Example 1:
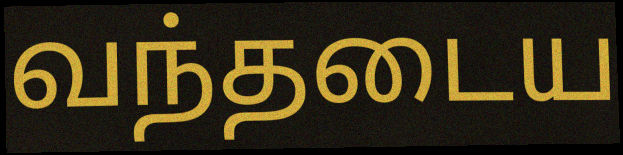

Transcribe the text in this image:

வந்தடைய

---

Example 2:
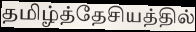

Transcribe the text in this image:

தமிழ்த்தேசியத்தில்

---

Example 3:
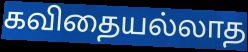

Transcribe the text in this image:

கவிதையல்லாத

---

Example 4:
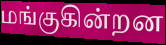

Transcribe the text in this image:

மங்குகின்றன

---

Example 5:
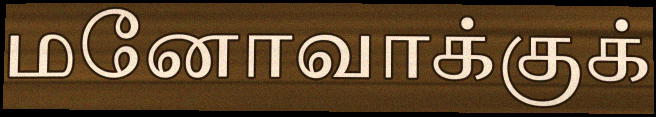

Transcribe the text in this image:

மனோவாக்குக்